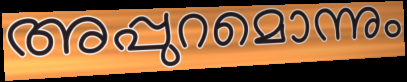
അപ്പുറമൊന്നും